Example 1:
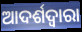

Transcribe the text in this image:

ଆଦର୍ଶଦ୍ୱାରା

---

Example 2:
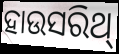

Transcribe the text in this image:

ହାଉସରିଥ୍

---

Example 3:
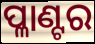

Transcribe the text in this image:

ପ୍ଳାଣ୍ଟର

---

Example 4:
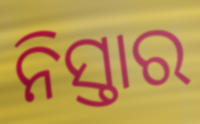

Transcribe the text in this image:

ନିସ୍ତାର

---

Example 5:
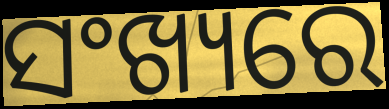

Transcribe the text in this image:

ସଂଖ୍ୟରେ